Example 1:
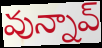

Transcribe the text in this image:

వున్నావ్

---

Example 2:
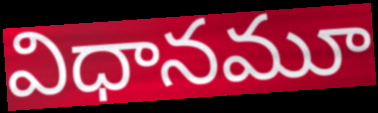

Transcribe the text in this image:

విధానమూ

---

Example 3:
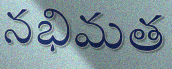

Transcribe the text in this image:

నభిమత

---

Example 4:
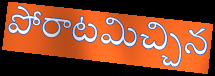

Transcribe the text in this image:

పోరాటమిచ్చిన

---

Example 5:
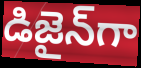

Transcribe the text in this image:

డిజైన్‌గా